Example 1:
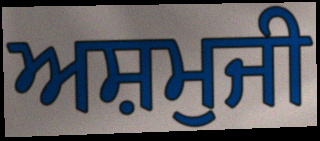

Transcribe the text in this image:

ਅਸ਼ਮੁਜੀ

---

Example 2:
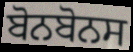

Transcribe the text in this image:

ਬੋਨਬੋਨਸ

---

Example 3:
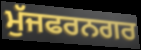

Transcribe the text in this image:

ਮੁੱਜਫਰਨਗਰ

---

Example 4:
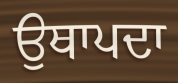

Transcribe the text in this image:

ਉਥਾਪਦਾ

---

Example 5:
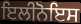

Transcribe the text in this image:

ਇਲੀਨੋਇਸ